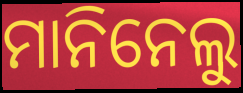
ମାନିନେଲୁ